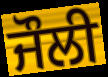
ਜੌਲੀ